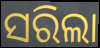
ସରିଲା